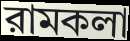
রামকলা